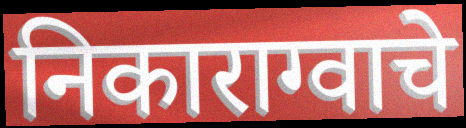
निकाराग्वाचे